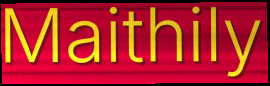
Maithily